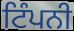
ਟਿੰਪਨੀ